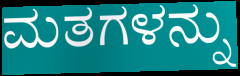
ಮತಗಳನ್ನು